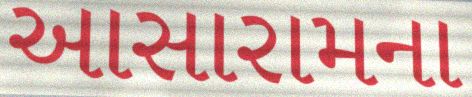
આસારામના